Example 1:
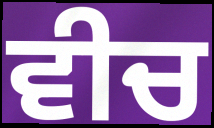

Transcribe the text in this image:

ਵੀਚ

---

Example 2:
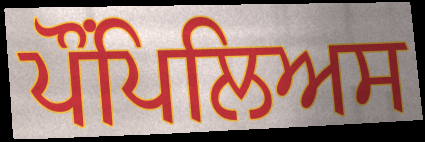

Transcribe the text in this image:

ਪੌਂਪਿਲਿਅਸ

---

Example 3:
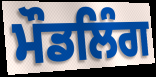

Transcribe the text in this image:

ਮੌਡਲਿੰਗ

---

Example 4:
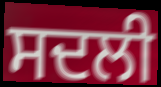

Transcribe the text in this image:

ਸਦਲੀ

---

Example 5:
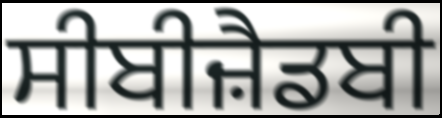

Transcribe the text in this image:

ਸੀਬੀਜ਼ੈਡਬੀ